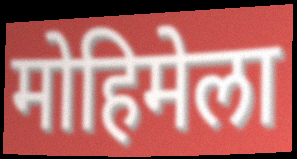
मोहिमेला